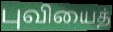
புவியைத்